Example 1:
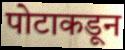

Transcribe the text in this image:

पोटाकडून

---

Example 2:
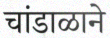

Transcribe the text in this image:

चांडाळाने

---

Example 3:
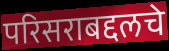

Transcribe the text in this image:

परिसराबद्दलचे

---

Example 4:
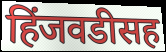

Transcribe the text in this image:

हिंजवडीसह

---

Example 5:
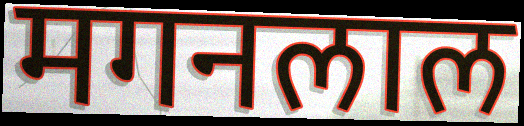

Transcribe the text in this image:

मगनलाल